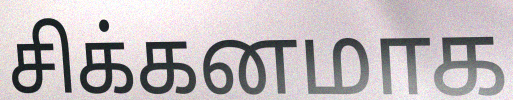
சிக்கனமாக